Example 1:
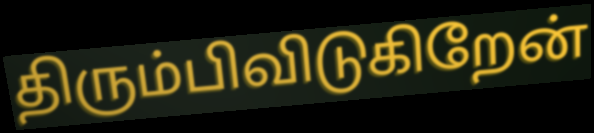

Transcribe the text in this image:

திரும்பிவிடுகிறேன்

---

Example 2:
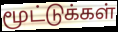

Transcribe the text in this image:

மூட்டுக்கள்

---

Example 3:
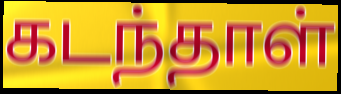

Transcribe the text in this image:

கடந்தாள்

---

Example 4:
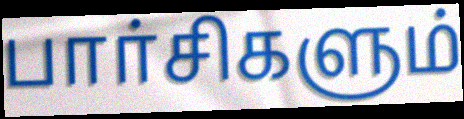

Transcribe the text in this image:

பார்சிகளும்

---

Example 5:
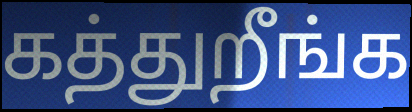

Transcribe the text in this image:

கத்துறீங்க